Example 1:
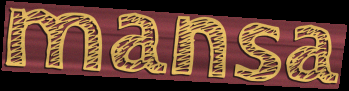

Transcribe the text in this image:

mansa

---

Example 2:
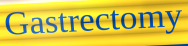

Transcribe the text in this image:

Gastrectomy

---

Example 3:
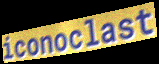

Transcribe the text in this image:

iconoclast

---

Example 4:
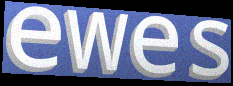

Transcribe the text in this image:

ewes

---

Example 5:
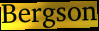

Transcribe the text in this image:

Bergson